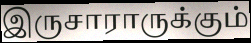
இருசாராருக்கும்